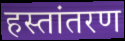
हस्तांतरण